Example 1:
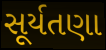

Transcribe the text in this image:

સૂર્યતણા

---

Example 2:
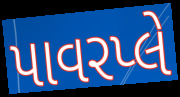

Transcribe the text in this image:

પાવરપ્લે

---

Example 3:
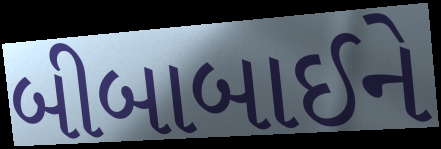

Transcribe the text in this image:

બીબાબાઈને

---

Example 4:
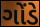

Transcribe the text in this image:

ગોંડે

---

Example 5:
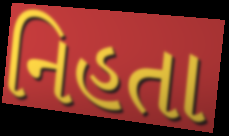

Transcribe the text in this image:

નિહતા